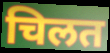
चिलत